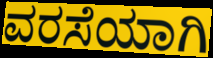
ವರಸೆಯಾಗಿ